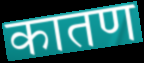
कातण